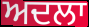
ਅਦਲਾ